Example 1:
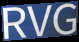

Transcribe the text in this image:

RVG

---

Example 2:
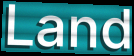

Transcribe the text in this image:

Land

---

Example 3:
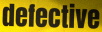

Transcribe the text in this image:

defective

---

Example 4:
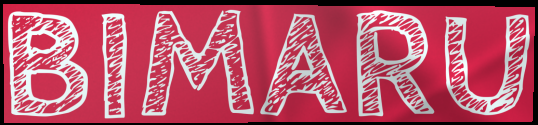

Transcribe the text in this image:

BIMARU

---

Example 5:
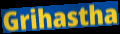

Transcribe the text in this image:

Grihastha